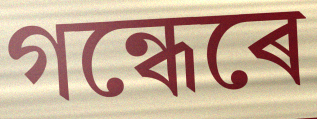
গন্ধেৰে